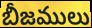
బీజములు